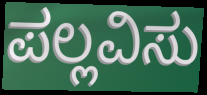
ಪಲ್ಲವಿಸು